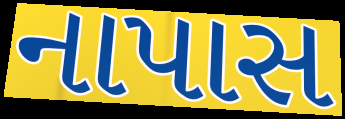
નાપાસ